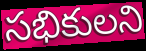
సభికులని